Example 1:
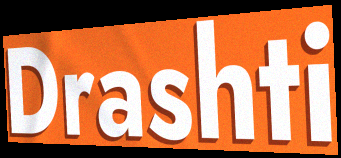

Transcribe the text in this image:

Drashti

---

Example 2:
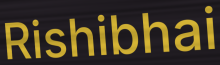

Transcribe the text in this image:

Rishibhai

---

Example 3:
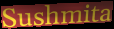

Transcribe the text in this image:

Sushmita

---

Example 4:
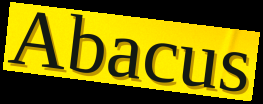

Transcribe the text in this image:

Abacus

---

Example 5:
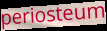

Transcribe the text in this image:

periosteum